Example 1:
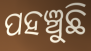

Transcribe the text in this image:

ପହଞ୍ଚୁଛି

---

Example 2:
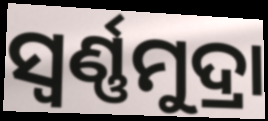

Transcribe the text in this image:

ସ୍ୱର୍ଣ୍ଣମୁଦ୍ରା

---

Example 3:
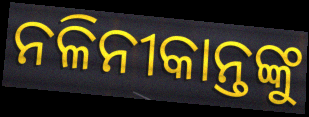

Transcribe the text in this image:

ନଳିନୀକାନ୍ତଙ୍କୁ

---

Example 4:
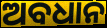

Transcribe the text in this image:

ଅବଧାନ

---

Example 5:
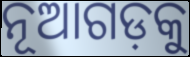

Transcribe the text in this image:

ନୂଆଗଡ଼କୁ